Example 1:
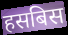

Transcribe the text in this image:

हसबिस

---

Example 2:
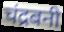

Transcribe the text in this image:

चंद्रबनी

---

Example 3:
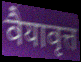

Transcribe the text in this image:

वैयावृत्त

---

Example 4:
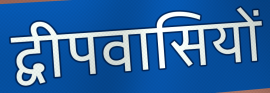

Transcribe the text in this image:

द्वीपवासियों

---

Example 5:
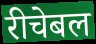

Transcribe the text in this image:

रीचेबल